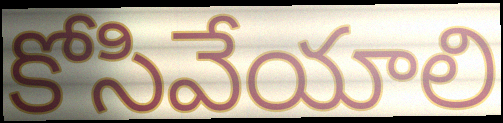
కోసివేయాలి